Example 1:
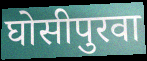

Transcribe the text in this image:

घोसीपुरवा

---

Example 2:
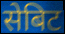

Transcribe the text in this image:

सेबिट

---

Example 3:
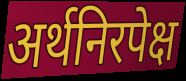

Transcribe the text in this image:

अर्थनिरपेक्ष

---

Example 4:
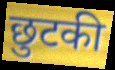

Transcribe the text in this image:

छुटकी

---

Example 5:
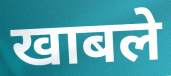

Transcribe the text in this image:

खाबले